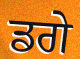
ਡਗੇ